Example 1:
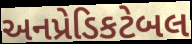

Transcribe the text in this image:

અનપ્રેડિકટેબલ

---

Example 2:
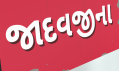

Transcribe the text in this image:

જાદવજીના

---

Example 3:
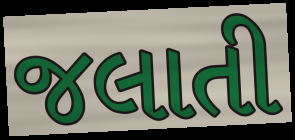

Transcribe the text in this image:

જલાતી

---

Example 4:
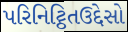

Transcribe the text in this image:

પરિનિટ્ઠિતઉદ્દેસો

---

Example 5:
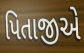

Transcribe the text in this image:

પિતાજીએ